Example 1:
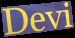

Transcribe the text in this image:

Devi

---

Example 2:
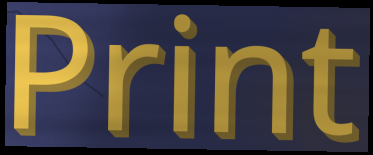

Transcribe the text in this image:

Print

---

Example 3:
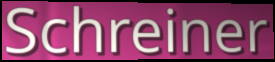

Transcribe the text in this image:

Schreiner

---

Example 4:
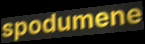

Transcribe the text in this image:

spodumene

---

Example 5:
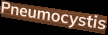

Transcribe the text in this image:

Pneumocystis